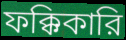
ফক্কিকারি